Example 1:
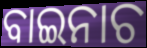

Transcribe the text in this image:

ବାଇନାଚ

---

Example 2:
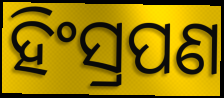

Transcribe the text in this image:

ହିଂସ୍ରପଣ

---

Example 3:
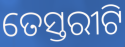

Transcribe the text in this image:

ତେସ୍ତରୀଟି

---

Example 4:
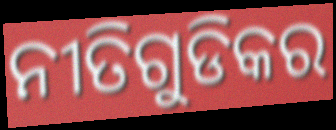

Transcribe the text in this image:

ନୀତିଗୁଡିକର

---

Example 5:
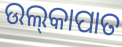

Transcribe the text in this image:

ଉଲ୍‍କାପାତ